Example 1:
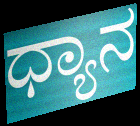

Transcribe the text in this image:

ಧ್ಯಾನ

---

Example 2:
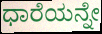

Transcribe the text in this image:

ಧಾರೆಯನ್ನೇ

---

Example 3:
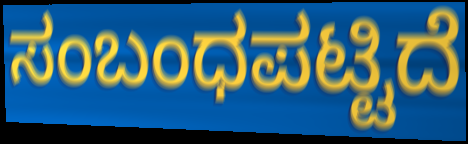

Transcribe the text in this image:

ಸಂಬಂಧಪಟ್ಟಿದೆ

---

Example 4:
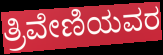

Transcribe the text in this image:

ತ್ರಿವೇಣಿಯವರ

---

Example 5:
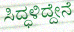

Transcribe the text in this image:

ಸಿದ್ಧಳಿದ್ದೇನೆ